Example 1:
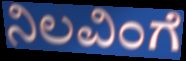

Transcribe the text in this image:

ನಿಲವಿಂಗೆ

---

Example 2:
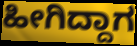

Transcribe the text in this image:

ಹೀಗಿದ್ದಾಗ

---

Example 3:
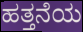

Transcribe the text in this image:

ಹತ್ತನೆಯ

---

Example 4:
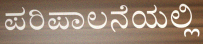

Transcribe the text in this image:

ಪರಿಪಾಲನೆಯಲ್ಲಿ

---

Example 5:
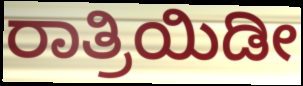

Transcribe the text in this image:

ರಾತ್ರಿಯಿಡೀ